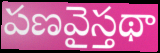
పణవైస్తథా